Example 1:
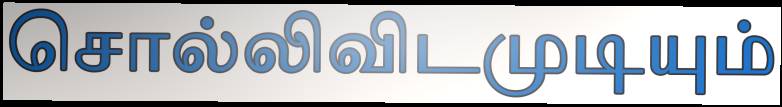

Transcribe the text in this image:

சொல்லிவிடமுடியும்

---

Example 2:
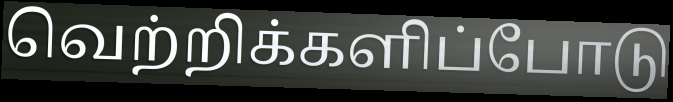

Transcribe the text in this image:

வெற்றிக்களிப்போடு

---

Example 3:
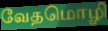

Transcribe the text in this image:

வேதமொழி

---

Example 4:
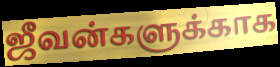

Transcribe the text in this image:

ஜீவன்களுக்காக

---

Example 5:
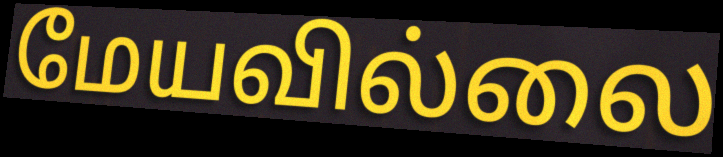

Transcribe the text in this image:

மேயவில்லை